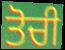
ਤੋਚੀ